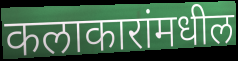
कलाकारांमधील